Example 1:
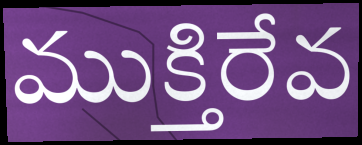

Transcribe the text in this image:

ముక్తిరేవ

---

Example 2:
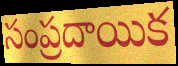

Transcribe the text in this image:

సంప్రదాయిక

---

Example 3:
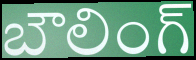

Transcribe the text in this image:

బౌలింగ్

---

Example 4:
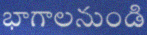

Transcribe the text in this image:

భాగాలనుండి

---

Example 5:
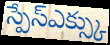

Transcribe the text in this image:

స్పేస్ఎక్స్కు